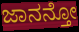
ಜಾನನ್ತೋ